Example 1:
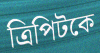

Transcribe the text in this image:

ত্রিপিটকে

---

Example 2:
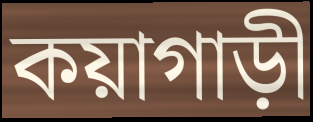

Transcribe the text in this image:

কয়াগাড়ী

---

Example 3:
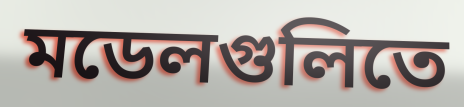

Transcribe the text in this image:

মডেলগুলিতে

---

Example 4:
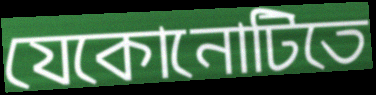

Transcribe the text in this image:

যেকোনোটিতে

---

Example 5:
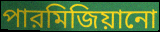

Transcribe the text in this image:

পারমিজিয়ানো